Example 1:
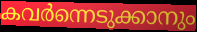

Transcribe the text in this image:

കവർന്നെടുക്കാനും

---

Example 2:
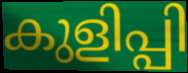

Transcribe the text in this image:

കുളിപ്പി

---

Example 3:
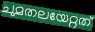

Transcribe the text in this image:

ചുമതലയേറ്റത്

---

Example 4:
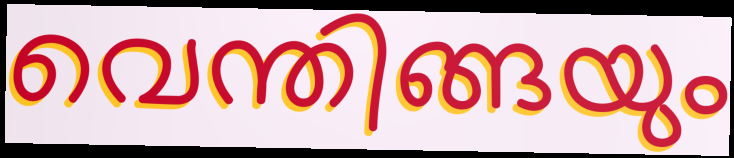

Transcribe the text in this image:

വെന്തിങ്ങയും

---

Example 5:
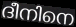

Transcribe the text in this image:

ദീനിനെ